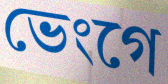
ভেংগে